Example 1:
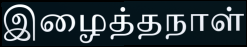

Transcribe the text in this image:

இழைத்தநாள்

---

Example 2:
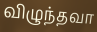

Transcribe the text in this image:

விழுந்தவா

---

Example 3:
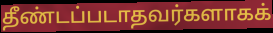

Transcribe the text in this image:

தீண்டப்படாதவர்களாகக்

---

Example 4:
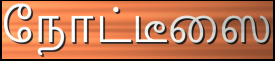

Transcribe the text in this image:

நோட்டீஸை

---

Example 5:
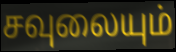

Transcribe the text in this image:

சவுலையும்